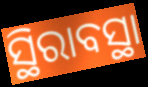
ସ୍ଥିରାବସ୍ଥା